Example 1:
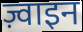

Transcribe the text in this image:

ज़्वाइन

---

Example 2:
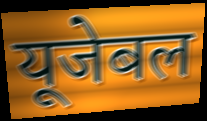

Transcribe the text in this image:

यूजेबल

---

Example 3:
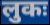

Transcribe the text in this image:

लुकः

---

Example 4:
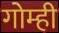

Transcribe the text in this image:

गोम्ही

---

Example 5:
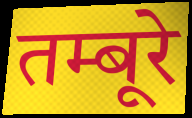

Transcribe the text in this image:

तम्बूरे